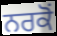
ਨਰਕੋਂ